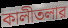
কালীতলার